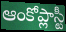
ఆంకోప్లాస్టీ